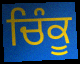
ਚਿੰਕੂ